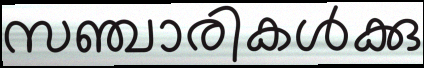
സഞ്ചാരികൾക്കു